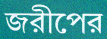
জরীপের